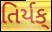
તિર્યક્